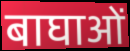
बाघाओं